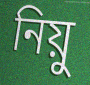
নিয়ু